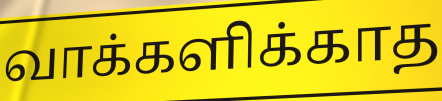
வாக்களிக்காத